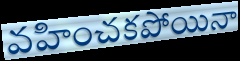
వహించకపోయినా